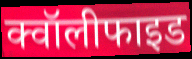
क्वॉलीफाइड